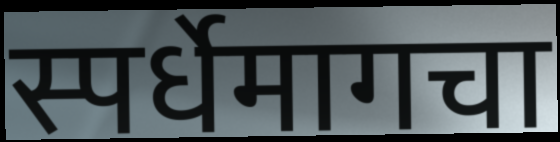
स्पर्धेमागचा